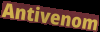
Antivenom